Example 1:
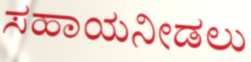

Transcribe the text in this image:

ಸಹಾಯನೀಡಲು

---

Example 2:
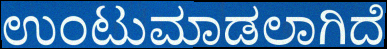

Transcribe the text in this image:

ಉಂಟುಮಾಡಲಾಗಿದೆ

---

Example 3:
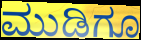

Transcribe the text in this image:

ಮುಡಿಗೂ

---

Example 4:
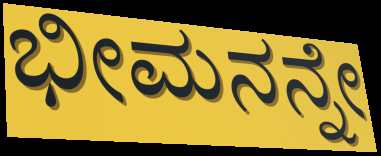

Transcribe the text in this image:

ಭೀಮನನ್ನೇ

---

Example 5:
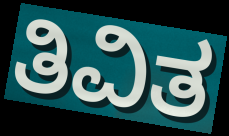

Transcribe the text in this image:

ತಿವಿತ